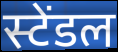
स्टेंडल